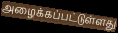
அழைக்கப்பட்டுள்ளது